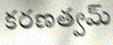
కరణత్వమ్